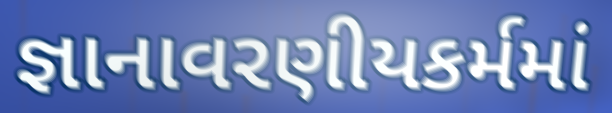
જ્ઞાનાવરણીયકર્મમાં